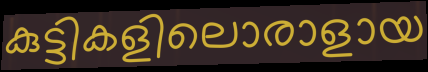
കുട്ടികളിലൊരാളായ